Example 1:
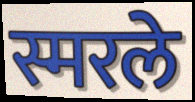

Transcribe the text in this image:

स्मरले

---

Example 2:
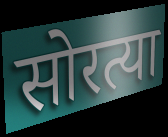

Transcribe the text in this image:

सोरत्या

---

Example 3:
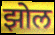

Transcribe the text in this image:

झोल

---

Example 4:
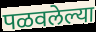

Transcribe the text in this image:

पळवलेल्या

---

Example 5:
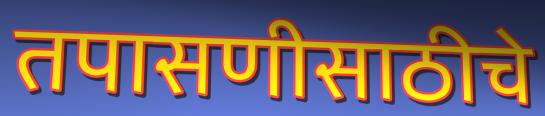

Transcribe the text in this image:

तपासणीसाठीचे